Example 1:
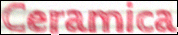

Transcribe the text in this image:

Ceramica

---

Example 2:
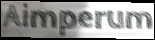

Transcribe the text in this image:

Aimperum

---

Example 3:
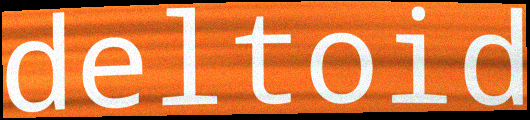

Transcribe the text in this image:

deltoid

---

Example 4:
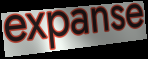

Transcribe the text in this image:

expanse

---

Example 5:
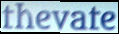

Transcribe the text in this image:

thevate